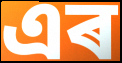
এৰ